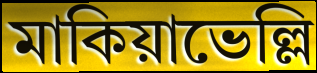
মাকিয়াভেল্লি